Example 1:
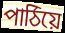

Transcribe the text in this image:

পাঠিয়ে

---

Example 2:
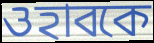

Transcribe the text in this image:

ওহাবকে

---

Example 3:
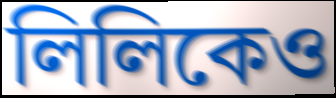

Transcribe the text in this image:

লিলিকেও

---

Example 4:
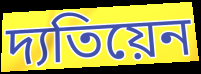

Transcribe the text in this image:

দ্যতিয়েন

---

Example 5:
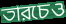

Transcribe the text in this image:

তারচেও